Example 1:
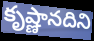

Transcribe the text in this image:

కృష్ణానదిని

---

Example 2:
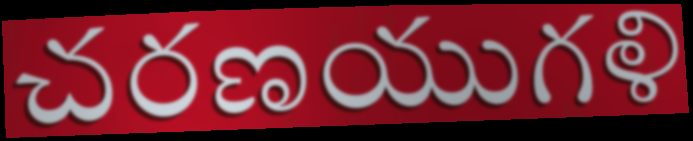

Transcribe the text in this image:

చరణయుగళి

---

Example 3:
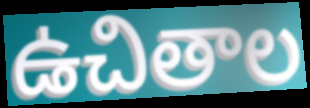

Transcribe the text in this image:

ఉచితాల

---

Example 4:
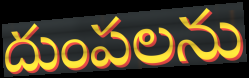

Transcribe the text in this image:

దుంపలను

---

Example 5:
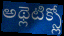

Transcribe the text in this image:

అథ్లెటిక్స్లో